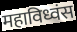
महाविध्वंस